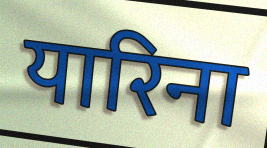
यारिना